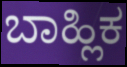
ಬಾಹ್ಲಿಕ